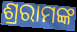
ଶ୍ରରାମଙ୍କ